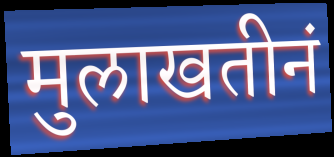
मुलाखतीनं